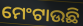
ମେଂଟାଉଛି